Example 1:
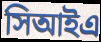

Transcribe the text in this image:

সিআইএ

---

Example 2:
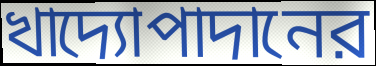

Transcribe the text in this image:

খাদ্যোপাদানের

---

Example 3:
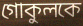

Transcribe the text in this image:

গোকুলকে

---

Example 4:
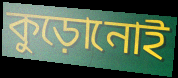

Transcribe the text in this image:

কুড়োনোই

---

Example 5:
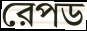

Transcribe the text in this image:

রেপড